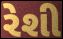
રેશી